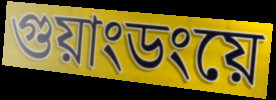
গুয়াংডংয়ে